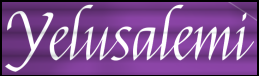
Yelusalemi